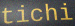
tichi